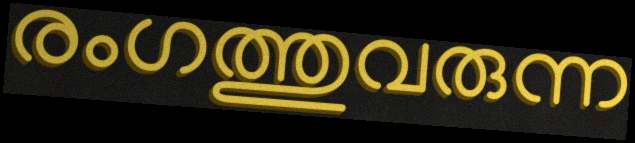
രംഗത്തുവരുന്ന